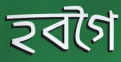
হবগৈ